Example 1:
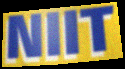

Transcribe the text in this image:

NIIT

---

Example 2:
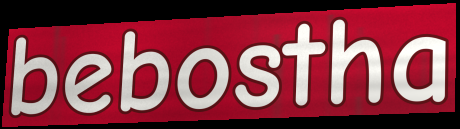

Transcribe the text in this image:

bebostha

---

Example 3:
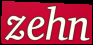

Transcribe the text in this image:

zehn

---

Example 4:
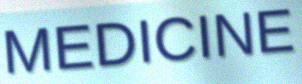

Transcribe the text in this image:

MEDICINE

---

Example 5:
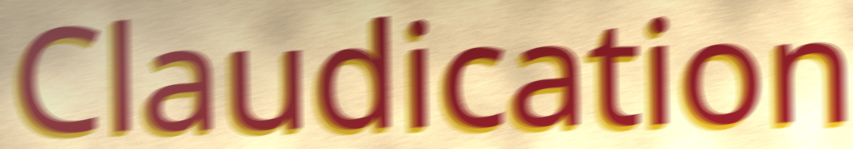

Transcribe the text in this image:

Claudication